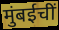
मुंबईचीं